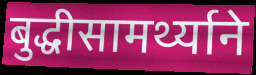
बुद्धीसामर्थ्याने